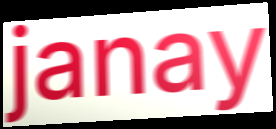
janay